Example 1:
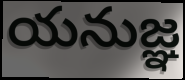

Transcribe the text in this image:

యనుజ్ఞ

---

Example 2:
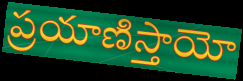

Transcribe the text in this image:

ప్రయాణిస్తాయో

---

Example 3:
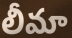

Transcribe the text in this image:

లీమా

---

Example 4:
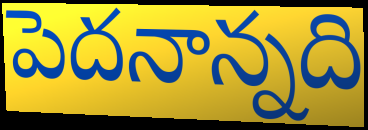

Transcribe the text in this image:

పెదనాన్నది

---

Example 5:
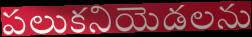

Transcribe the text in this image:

పలుకనియెడలను